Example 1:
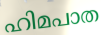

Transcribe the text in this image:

ഹിമപാത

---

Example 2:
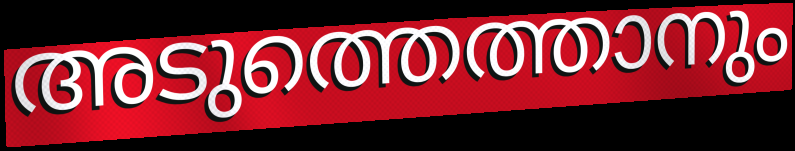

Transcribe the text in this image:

അടുത്തെത്താനും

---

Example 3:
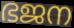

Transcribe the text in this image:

ഭജന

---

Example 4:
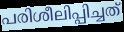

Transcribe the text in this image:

പരിശീലിപ്പിച്ചത്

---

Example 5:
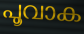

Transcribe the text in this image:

പൂവാക